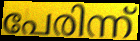
പേരിന്ന്